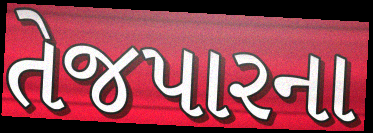
તેજપારના